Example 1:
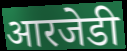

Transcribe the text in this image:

आरजेडी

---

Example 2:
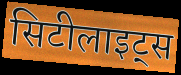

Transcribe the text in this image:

सिटीलाइट्स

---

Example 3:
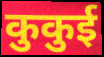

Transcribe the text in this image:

कुकुई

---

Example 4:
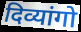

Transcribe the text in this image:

दिव्यांगो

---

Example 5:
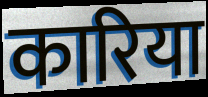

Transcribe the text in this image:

कारिया